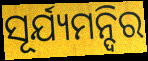
ସୂର୍ଯ୍ୟମନ୍ଦିର